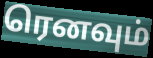
ரெனவும்